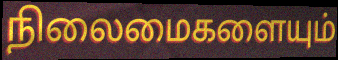
நிலைமைகளையும்